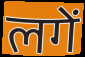
लगें